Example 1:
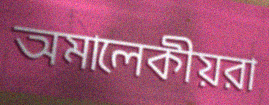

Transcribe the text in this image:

অমালেকীয়রা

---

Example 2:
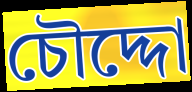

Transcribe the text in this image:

চৌদ্দো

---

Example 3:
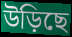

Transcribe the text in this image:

উড়িছে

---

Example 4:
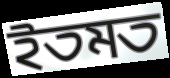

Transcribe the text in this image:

ইতমত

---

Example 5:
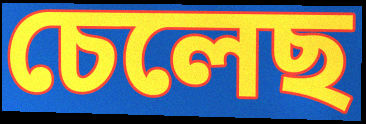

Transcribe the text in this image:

চেলেছ